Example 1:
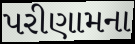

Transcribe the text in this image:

પરીણામના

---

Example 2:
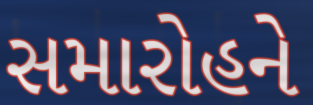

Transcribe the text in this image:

સમારોહને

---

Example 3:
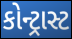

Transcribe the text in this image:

કોન્ટ્રાસ્ટ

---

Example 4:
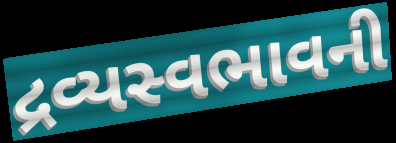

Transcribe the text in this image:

દ્રવ્યસ્વભાવની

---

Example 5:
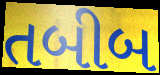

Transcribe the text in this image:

તબીબ